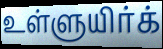
உள்ளுயிர்க்